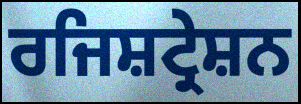
ਰਜਿਸ਼ਟ੍ਰੇਸ਼ਨ